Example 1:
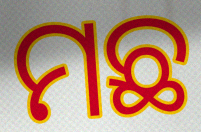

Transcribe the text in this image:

ମଛ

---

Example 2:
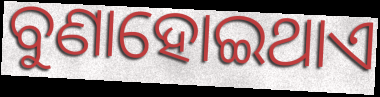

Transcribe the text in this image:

ବୁଣାହୋଇଥାଏ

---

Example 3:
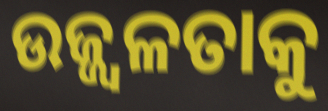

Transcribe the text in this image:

ଉଜ୍ଜ୍ୱଳତାକୁ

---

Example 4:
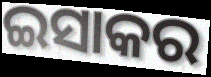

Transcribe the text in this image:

ଇସାକର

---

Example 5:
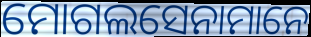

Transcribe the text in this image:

ମୋଗଲସେନାମାନେ